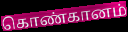
கொண்கானம்